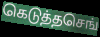
கெடுத்தசெங்